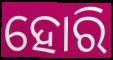
ହୋରି